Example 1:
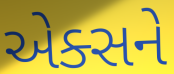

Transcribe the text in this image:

એક્સને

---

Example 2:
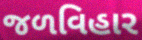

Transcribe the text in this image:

જળવિહાર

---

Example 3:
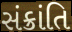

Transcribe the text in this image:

સંક્રાંતિ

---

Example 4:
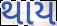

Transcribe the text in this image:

થાય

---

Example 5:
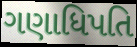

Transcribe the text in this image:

ગણાધિપતિ